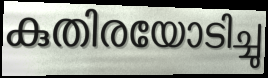
കുതിരയോടിച്ചു